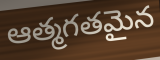
ఆత్మగతమైన